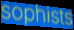
sophists